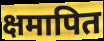
क्षमापित